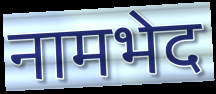
नामभेद